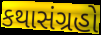
કથાસંગ્રહો